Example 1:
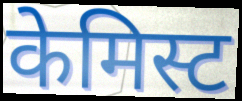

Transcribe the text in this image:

केमिस्ट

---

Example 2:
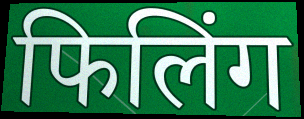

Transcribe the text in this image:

फिलिंग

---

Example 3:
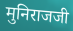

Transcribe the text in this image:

मुनिराजजी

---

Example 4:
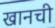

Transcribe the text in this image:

खानची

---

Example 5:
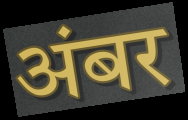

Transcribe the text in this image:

अंबर